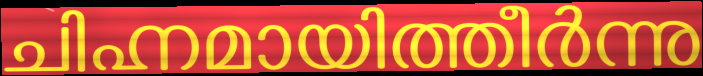
ചിഹ്നമായിത്തീർന്നു